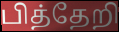
பித்தேறி